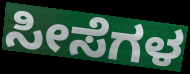
ಸೀಸೆಗಳ